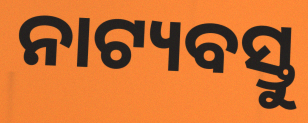
ନାଟ୍ୟବସ୍ତୁ